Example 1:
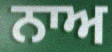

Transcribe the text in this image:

ਨਾਅ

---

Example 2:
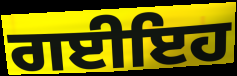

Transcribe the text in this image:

ਗਈਇਹ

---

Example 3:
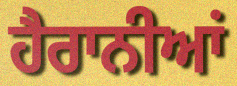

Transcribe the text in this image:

ਹੈਰਾਨੀਆਂ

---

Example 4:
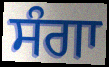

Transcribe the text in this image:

ਸੰਗਾ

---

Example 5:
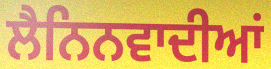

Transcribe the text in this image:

ਲੈਨਿਨਵਾਦੀਆਂ